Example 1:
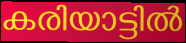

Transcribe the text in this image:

കരിയാട്ടിൽ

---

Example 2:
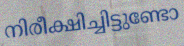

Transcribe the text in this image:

നിരീക്ഷിച്ചിട്ടുണ്ടോ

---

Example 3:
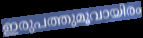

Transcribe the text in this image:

ഇരുപത്തുമൂവായിരം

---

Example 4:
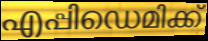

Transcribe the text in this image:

എപ്പിഡെമിക്ക്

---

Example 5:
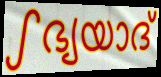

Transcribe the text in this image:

ഽഭ്യയാദ്